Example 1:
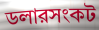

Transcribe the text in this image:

ডলারসংকট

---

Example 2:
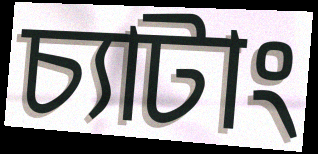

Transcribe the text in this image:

চ্যাটাং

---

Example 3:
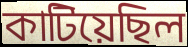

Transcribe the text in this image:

কাটিয়েছিল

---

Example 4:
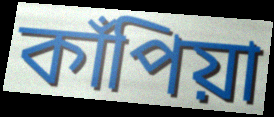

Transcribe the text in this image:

কাঁপিয়া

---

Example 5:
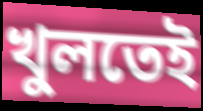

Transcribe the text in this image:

খুলতেই